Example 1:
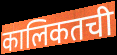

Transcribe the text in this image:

कालिकतची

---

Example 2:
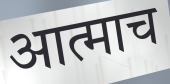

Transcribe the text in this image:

आत्माच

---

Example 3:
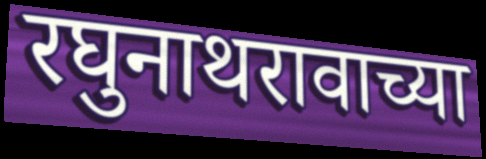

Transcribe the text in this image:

रघुनाथरावाच्या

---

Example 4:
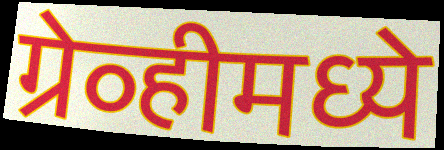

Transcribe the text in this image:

ग्रेव्हीमध्ये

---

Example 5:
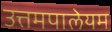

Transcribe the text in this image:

उत्तमपालेयम